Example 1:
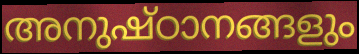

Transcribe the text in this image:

അനുഷ്ഠാനങ്ങളും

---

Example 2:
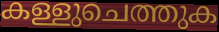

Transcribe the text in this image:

കള്ളുചെത്തുക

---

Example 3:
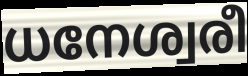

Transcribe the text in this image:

ധനേശ്വരീ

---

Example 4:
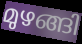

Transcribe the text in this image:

മുഴങ്ങി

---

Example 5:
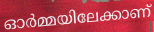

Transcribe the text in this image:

ഓർമ്മയിലേക്കാണ്